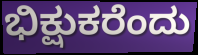
ಭಿಕ್ಷುಕರೆಂದು